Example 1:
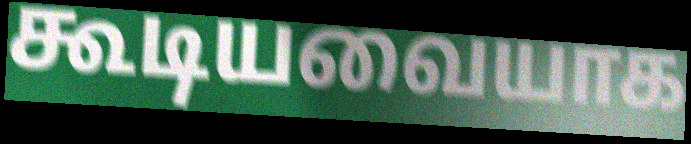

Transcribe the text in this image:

கூடியவையாக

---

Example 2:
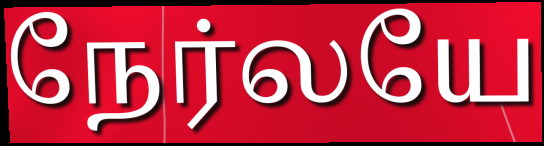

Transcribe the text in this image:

நேர்லயே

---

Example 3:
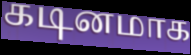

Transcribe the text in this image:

கடினமாக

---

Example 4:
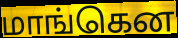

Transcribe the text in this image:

மாங்கென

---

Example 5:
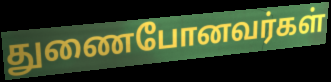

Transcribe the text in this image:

துணைபோனவர்கள்